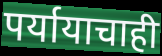
पर्यायाचाही